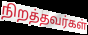
நிறத்தவர்கள்